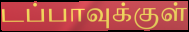
டப்பாவுக்குள்